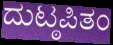
ದುಟ್ಠಪಿತಂ